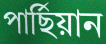
পাৰ্ছিয়ান